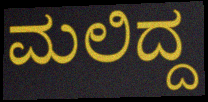
ಮಲಿದ್ದ